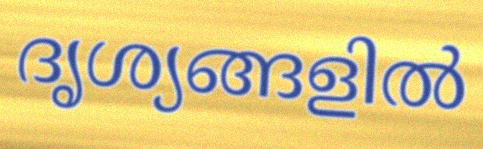
ദൃശ്യങ്ങളിൽ